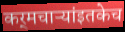
कर्मचाऱ्यांइतकेच